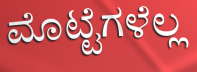
ಮೊಟ್ಟೆಗಳೆಲ್ಲ